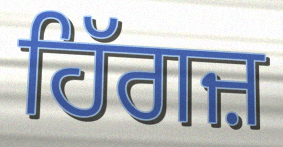
ਹਿੱਗਜ਼